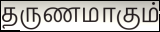
தருணமாகும்